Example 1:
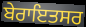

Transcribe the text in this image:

ਬੇਰਾਇਤਸਰ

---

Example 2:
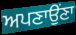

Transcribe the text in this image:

ਅਪਣਾਉਂਣਾ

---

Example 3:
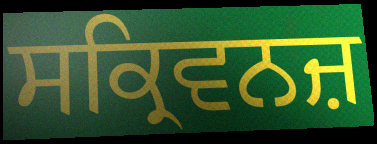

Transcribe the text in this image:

ਸਕ੍ਰਿਵਨਜ਼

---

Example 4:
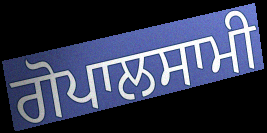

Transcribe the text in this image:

ਗੋਪਾਲਸਾਮੀ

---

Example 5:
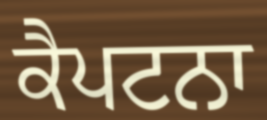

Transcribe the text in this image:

ਕੈਪਟਨਾ